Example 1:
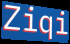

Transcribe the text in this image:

Ziqi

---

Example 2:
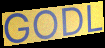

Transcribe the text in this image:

GODL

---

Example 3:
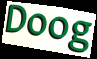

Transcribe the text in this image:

Doog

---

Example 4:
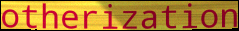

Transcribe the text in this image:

otherization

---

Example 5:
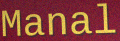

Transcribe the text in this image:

Manal